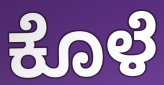
ಕೊಳೆ